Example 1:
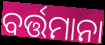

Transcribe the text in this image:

ବର୍ତ୍ତମାନା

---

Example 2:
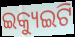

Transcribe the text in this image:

ଇକ୍ୟୁଇଟି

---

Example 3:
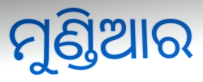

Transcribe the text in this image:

ମୁଣ୍ଡିଆର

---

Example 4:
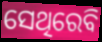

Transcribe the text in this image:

ସେଥିରେବି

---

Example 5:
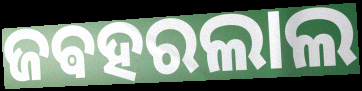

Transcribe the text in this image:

ଜଵହରଲାଲ